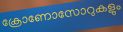
ക്രോണോസോറുകളും